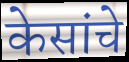
केसांचे